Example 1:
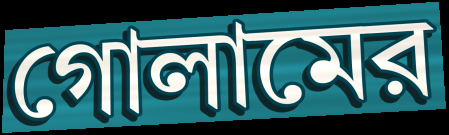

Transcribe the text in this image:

গোলামের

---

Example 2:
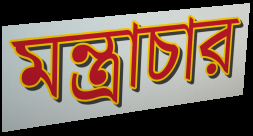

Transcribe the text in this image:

মন্ত্রাচার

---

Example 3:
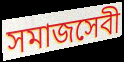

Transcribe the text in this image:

সমাজসেবী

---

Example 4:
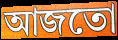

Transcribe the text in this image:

আজতো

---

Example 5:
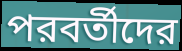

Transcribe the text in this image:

পরবর্তীদের